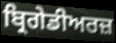
ਬ੍ਰਿਗੇਡੀਅਰਜ਼